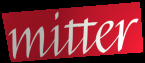
mitter